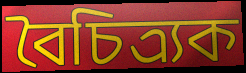
বৈচিত্ৰ্যক